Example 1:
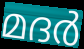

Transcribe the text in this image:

മദർ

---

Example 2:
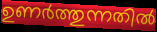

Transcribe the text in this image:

ഉണർത്തുന്നതിൽ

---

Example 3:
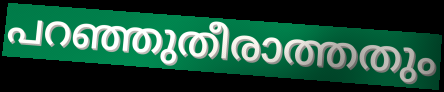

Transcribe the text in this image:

പറഞ്ഞുതീരാത്തതും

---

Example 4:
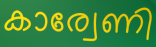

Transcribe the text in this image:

കാര്വേണി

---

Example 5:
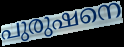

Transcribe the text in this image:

പുരുഷനെ